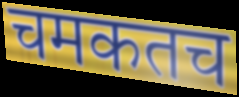
चमकतच